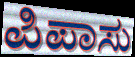
ಪಿಪಾಸು